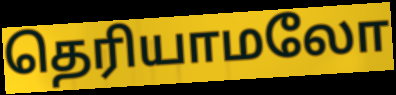
தெரியாமலோ